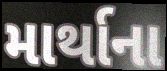
માર્થાના